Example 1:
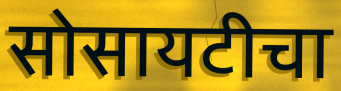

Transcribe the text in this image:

सोसायटीचा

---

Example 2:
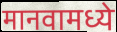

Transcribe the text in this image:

मानवामध्ये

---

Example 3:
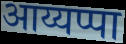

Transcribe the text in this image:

आय्यप्पा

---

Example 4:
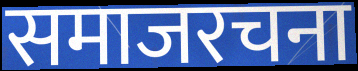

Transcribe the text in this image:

समाजरचना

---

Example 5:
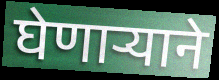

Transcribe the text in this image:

घेणाऱ्याने